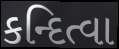
કન્દિત્વા